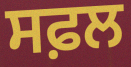
ਸਫ਼ਲ